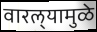
वारल्यामुळे